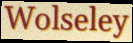
Wolseley